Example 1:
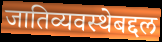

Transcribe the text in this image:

जातिव्यवस्थेबद्दल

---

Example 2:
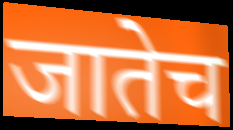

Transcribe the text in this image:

जातेच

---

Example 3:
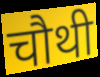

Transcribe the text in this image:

चौथी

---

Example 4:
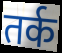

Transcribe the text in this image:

तर्क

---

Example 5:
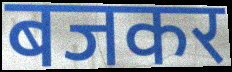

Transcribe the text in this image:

बजकर